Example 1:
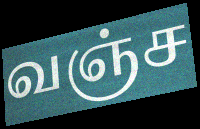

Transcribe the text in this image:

வஞ்ச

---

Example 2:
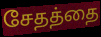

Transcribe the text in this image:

சேதத்தை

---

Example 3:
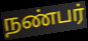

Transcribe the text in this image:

நண்பர்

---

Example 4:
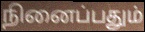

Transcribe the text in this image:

நினைப்பதும்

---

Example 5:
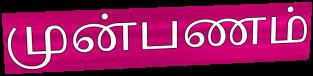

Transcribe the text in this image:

முன்பணம்